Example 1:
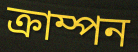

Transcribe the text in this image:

ক্রাম্পন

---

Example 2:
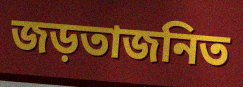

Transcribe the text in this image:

জড়তাজনিত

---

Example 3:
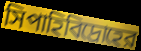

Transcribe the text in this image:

সিপাহিবিদ্রোহের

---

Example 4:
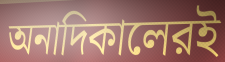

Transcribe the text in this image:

অনাদিকালেরই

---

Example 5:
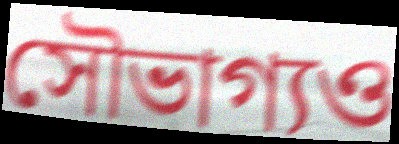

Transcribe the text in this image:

সৌভাগ্যও